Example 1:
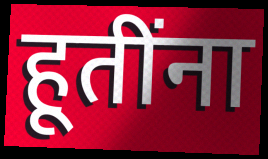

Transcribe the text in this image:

हूतींना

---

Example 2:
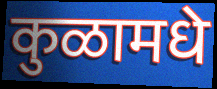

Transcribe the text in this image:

कुळामधे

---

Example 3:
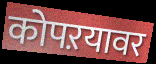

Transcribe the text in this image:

कोपऱयावर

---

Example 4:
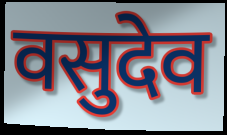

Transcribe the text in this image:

वसुदेव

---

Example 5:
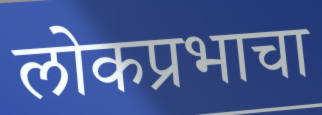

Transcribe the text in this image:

लोकप्रभाचा